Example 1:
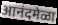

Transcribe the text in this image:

आनंदमेळा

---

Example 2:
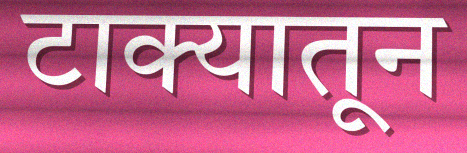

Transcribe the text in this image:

टाक्यातून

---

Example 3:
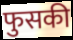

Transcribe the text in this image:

फुसकी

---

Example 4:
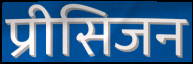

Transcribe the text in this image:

प्रीसिजन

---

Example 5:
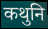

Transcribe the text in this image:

कथुनि